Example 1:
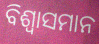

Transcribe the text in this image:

ବିଶ୍ଵାସମାନ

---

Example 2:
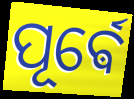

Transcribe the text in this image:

ପୂର୍ଵେ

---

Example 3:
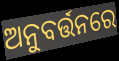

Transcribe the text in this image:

ଅନୁବର୍ତ୍ତନରେ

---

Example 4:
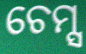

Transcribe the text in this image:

ଚେମ୍ସ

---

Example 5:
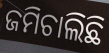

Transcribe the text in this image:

ଜମିଚାଲିଛି